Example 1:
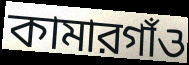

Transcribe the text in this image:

কামারগাঁও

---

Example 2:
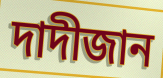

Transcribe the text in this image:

দাদীজান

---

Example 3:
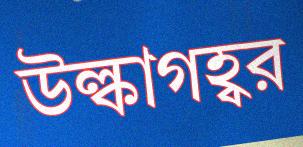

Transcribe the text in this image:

উল্কাগহ্বর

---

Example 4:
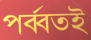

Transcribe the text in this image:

পর্ব্বতই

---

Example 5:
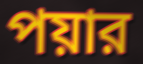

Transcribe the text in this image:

পয়ার